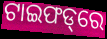
ଟାଇଫଡ୍‌ରେ